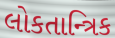
લોકતાન્ત્રિક